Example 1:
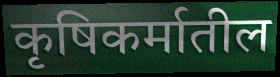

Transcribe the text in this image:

कृषिकर्मातील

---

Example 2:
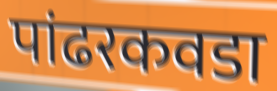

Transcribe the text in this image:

पांढरकवडा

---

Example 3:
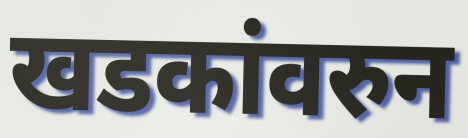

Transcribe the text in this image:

खडकांवरुन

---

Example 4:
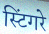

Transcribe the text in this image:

स्टिंगरे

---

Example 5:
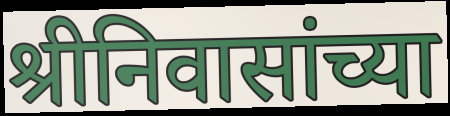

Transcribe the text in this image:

श्रीनिवासांच्या